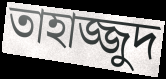
তাহাজ্জুদ